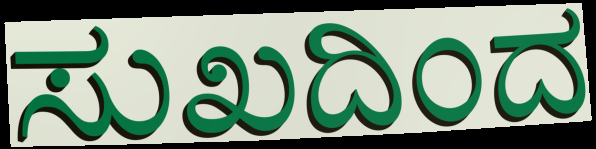
ಸುಖದಿಂದ